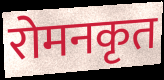
रोमनकृत